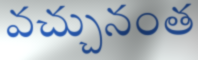
వచ్చునంత